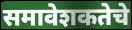
समावेशकतेचे